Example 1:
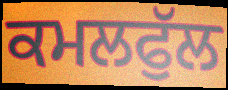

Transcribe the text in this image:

ਕਮਲਫੁੱਲ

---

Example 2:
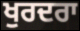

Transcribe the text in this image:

ਖੁਰਦਰਾ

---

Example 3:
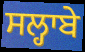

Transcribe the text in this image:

ਸਲ੍ਹਾਬੇ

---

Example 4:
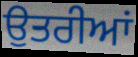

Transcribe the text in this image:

ਉਤਰੀਆਂ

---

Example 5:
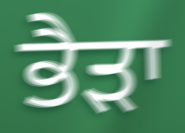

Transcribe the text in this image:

ਭੈੜਾ